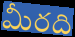
మీరది